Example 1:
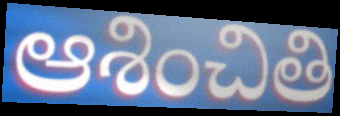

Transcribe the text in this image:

ఆశించితి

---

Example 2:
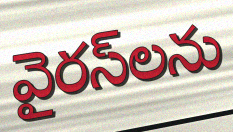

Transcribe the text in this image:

వైరస్‌లను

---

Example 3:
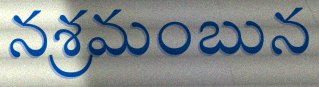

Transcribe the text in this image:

నశ్రమంబున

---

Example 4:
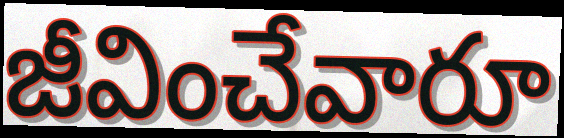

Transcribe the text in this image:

జీవించేవారూ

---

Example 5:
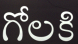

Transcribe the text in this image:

గోలకి